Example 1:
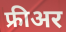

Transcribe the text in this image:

फ्रीअर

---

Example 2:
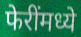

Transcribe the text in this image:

फेरींमध्ये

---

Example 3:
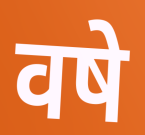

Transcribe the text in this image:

वषे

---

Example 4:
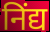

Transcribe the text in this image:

निंद्य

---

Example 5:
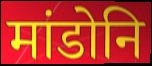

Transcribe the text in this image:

मांडोनि